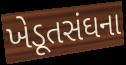
ખેડૂતસંઘના